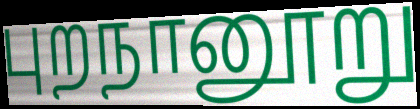
புறநானூறு